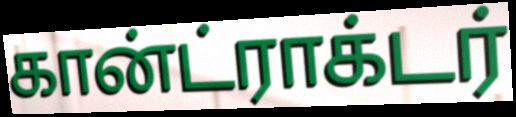
கான்ட்ராக்டர்